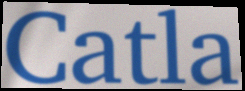
Catla